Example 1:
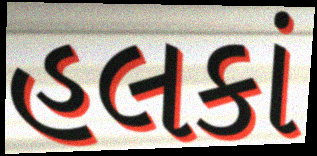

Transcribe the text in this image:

હલકાં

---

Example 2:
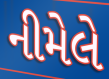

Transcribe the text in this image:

નીમેલે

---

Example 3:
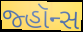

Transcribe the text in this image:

જ્હૉન્સ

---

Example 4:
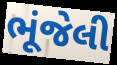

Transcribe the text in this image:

ભૂંજેલી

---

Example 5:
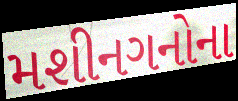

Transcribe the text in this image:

મશીનગનોના